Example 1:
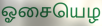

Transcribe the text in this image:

ஓசையெழ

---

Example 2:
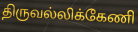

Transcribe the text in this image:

திருவல்லிக்கேணி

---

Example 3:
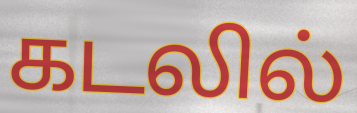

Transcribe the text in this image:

கடலில்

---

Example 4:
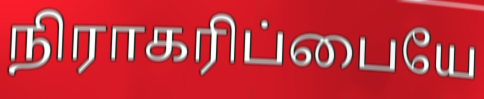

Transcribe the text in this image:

நிராகரிப்பையே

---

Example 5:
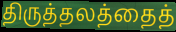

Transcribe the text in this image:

திருத்தலத்தைத்